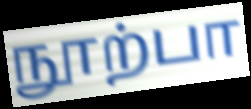
நூற்பா